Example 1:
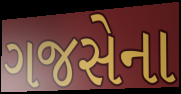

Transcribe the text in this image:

ગજસેના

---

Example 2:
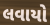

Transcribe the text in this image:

લવાયો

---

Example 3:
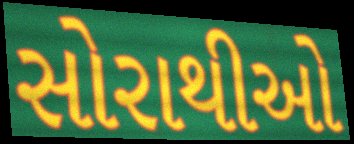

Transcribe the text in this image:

સોરાથીઓ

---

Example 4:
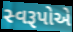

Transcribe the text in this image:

સ્વરૂપોએ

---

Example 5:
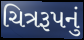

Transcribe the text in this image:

ચિત્રરૂપનું